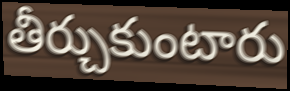
తీర్చుకుంటారు